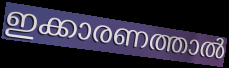
ഇക്കാരണത്താൽ